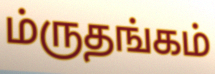
ம்ருதங்கம்